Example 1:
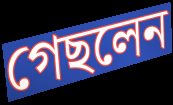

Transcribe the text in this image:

গেছলেন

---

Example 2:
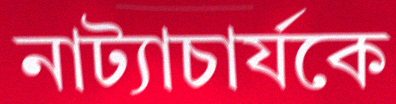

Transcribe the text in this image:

নাট্যাচার্যকে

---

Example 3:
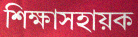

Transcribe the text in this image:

শিক্ষাসহায়ক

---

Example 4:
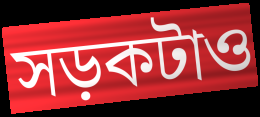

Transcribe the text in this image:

সড়কটাও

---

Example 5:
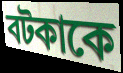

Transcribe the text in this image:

বটকাকে